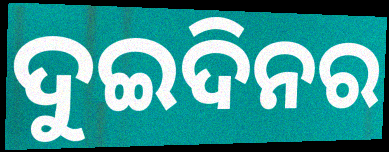
ଦୁଇଦିନର